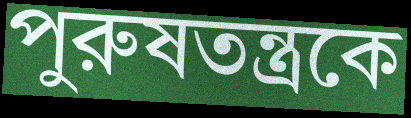
পুরুষতন্ত্রকে